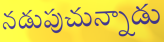
నడుపుచున్నాడు